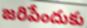
జరిపేందుకు